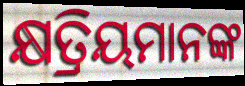
କ୍ଷତ୍ରିୟମାନଙ୍କ